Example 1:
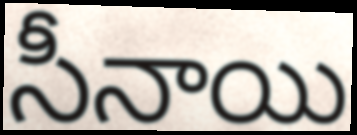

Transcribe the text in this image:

సీనాయి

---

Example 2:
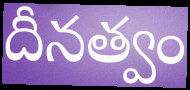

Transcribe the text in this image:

దీనత్వం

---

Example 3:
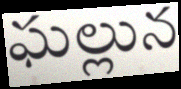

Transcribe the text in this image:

ఘల్లున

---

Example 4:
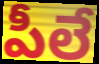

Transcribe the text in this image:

పీలే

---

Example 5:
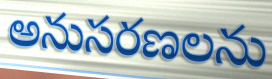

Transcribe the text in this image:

అనుసరణలను